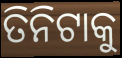
ତିନିଟାକୁ